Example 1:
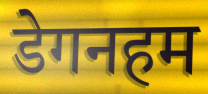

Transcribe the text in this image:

डेगनहम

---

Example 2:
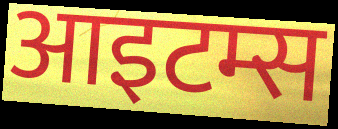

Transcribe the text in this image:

आइटम्‍स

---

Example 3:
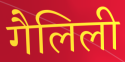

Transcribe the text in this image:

गैलिली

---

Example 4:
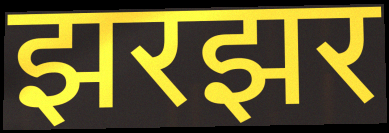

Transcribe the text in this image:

झरझर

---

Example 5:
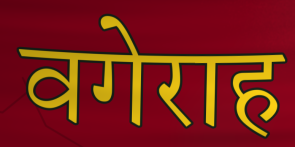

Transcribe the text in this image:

वगेराह